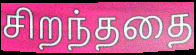
சிறந்ததை